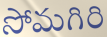
సోమగిరి